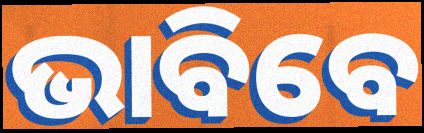
ଭାବିବେ